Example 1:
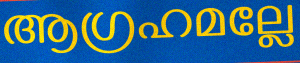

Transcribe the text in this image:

ആഗ്രഹമല്ലേ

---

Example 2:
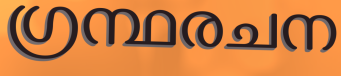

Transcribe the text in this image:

ഗ്രന്ഥരചന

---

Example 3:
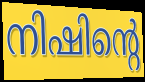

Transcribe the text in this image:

നിഷിന്റെ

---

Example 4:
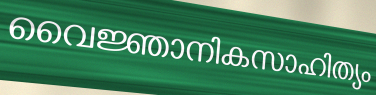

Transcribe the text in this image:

വൈജ്ഞാനികസാഹിത്യം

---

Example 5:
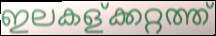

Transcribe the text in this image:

ഇലകള്ക്കറ്റത്ത്